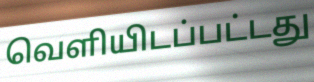
வெளியிடப்பட்டது